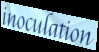
inoculation